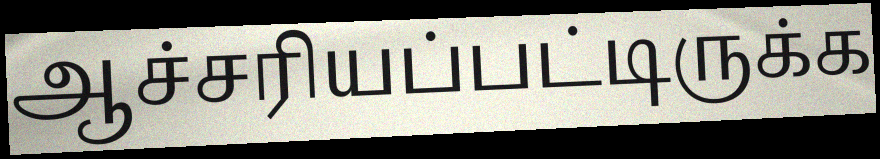
ஆச்சரியப்பட்டிருக்க